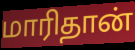
மாரிதான்